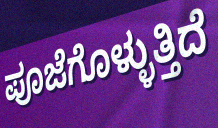
ಪೂಜೆಗೊಳ್ಳುತ್ತಿದೆ